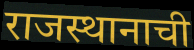
राजस्थानाची